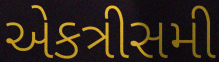
એકત્રીસમી